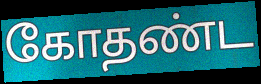
கோதண்ட